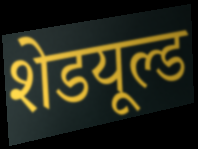
शेडयूल्ड